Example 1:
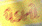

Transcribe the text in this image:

પૈડાનો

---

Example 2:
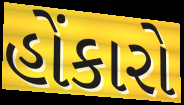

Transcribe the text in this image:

હોંકારો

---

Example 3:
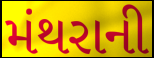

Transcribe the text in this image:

મંથરાની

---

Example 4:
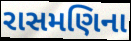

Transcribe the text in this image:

રાસમણિના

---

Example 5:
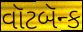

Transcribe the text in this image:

વૉટબૅન્ક